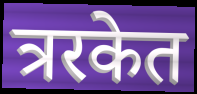
त्ररकेत